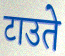
टाउते